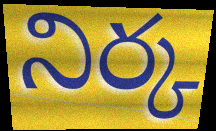
నిర్క